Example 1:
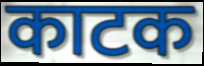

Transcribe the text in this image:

काटक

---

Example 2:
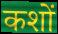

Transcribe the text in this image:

कशों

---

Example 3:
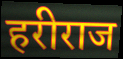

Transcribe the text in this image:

हरीराज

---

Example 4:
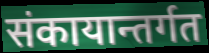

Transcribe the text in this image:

संकायान्तर्गत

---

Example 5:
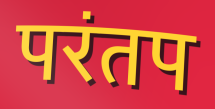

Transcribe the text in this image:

परंतप